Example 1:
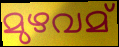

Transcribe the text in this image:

മുഴവമ്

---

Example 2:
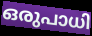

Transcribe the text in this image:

ഒരുപാധി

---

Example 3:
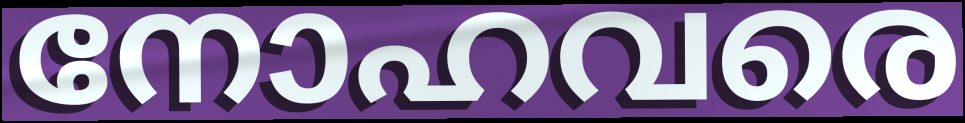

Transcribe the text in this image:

നോഹവരെ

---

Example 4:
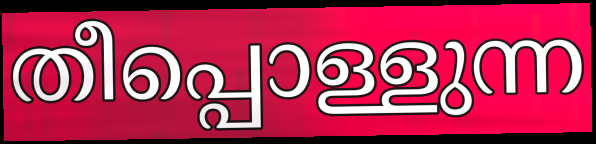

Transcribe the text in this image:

തീപ്പൊള്ളുന്ന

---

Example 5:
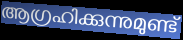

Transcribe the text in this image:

ആഗ്രഹിക്കുന്നുമുണ്ട്